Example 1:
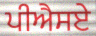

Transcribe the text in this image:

ਪੀਐਸਏ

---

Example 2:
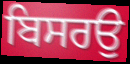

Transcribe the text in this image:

ਬਿਸਰਉ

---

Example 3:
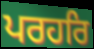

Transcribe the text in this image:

ਪਰਹਰਿ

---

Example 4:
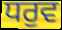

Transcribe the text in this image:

ਧਰੁਵ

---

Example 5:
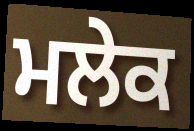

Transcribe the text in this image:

ਮਲੇਕ